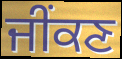
ਜੀਂਕਣ